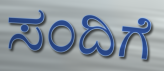
ಸಂದಿಗೆ